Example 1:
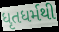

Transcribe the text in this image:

ધૃતધર્મથી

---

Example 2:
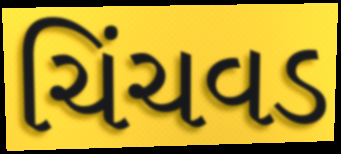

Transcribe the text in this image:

ચિંચવડ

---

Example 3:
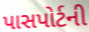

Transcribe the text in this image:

પાસપોર્ટની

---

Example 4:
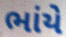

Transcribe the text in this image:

ભાંયે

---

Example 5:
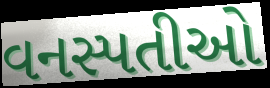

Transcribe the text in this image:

વનસ્પતીઓ